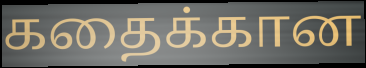
கதைக்கான